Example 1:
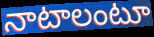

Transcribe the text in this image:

నాటాలంటూ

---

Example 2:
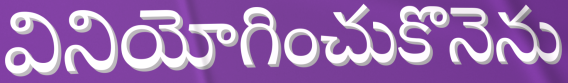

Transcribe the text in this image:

వినియోగించుకొనెను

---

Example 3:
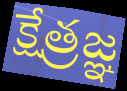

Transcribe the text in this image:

క్షేత్రజ్ఞ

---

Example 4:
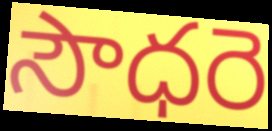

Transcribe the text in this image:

సౌధరె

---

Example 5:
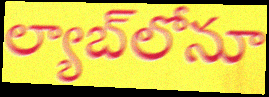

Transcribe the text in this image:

ల్యాబ్‌లోనూ